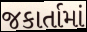
જકાર્તામાં